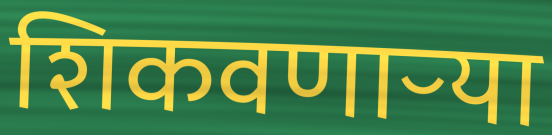
शिकवणाऱ्या